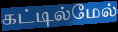
கட்டில்மேல்